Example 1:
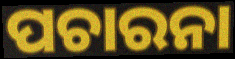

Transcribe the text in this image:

ପଚାରନା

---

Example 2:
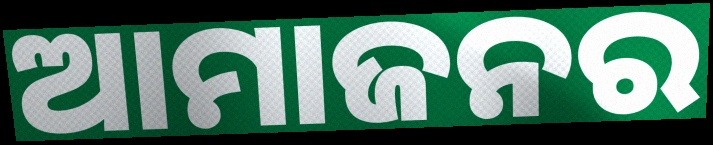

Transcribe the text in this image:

ଆମାଜନର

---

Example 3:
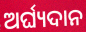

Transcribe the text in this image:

ଅର୍ଘ୍ୟଦାନ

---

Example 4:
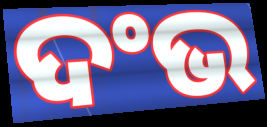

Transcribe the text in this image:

ଦଂଭ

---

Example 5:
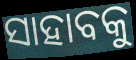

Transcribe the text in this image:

ସାହାବକୁ